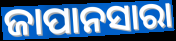
ଜାପାନସାରା